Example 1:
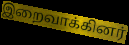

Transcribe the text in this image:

இறைவாக்கினர்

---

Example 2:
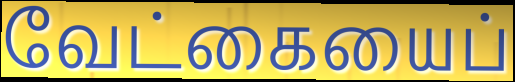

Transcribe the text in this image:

வேட்கையைப்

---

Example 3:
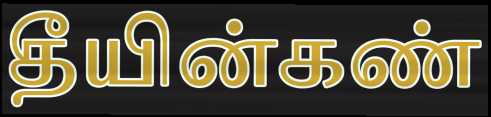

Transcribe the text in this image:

தீயின்கண்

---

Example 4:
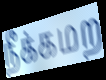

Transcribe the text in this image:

நீக்கமற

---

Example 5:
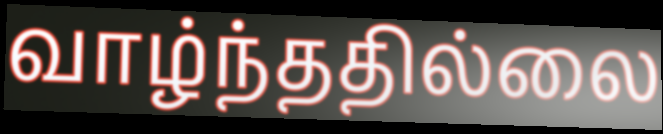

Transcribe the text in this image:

வாழ்ந்ததில்லை